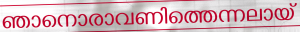
ഞാനൊരാവണിത്തെന്നലായ്